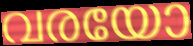
വരയോ